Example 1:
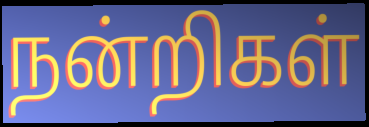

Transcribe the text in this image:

நன்றிகள்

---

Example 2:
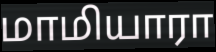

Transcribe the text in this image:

மாமியாரா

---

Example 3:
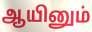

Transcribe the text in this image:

ஆயினும்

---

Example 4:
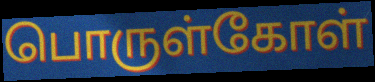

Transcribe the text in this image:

பொருள்கோள்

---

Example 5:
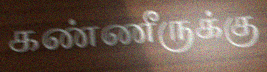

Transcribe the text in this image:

கண்ணீருக்கு